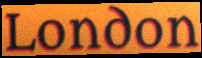
London